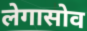
लेगासोव